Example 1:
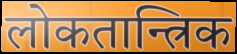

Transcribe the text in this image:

लोकतान्त्रिक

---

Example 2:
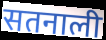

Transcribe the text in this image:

सतनाली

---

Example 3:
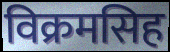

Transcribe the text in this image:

विक्रमसिह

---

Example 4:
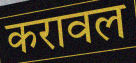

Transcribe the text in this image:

करावल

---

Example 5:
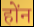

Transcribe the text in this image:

होंन